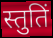
स्तुतिं